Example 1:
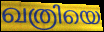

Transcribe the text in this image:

ഖത്രിയെ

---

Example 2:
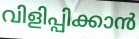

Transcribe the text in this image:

വിളിപ്പിക്കാൻ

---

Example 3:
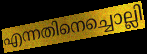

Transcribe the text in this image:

എന്നതിനെച്ചൊല്ലി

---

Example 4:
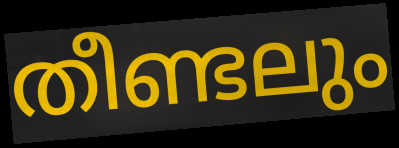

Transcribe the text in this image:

തീണ്ടലും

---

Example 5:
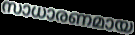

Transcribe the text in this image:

സാധാരണമായ